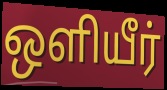
ஒளியீர்